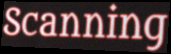
Scanning